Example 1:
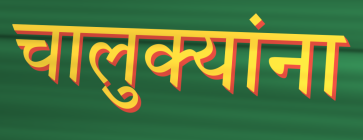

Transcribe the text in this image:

चालुक्यांना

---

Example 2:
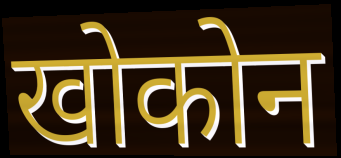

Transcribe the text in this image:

खोकोन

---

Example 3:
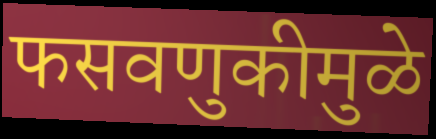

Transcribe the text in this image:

फसवणुकीमुळे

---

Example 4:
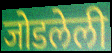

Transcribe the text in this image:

जोडलेली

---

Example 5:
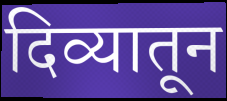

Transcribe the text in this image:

दिव्यातून